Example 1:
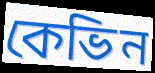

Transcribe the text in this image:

কেভিন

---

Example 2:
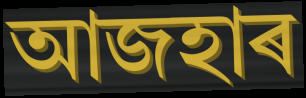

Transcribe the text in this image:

আজহাৰ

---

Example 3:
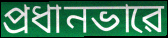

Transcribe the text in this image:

প্ৰধানভাৱে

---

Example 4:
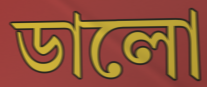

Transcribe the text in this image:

ডালো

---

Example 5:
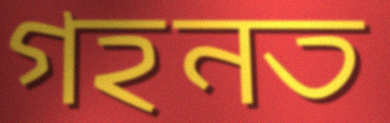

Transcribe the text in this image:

গহনত